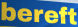
bereft